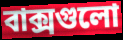
বাক্সগুলো